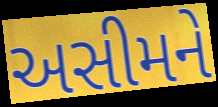
અસીમને